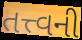
તત્ત્વની